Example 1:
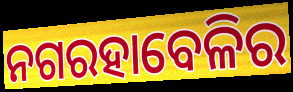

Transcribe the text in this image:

ନଗରହାବେଳିର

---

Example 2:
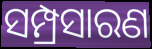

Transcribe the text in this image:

ସମ୍ପ୍ରସାରଣ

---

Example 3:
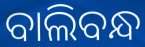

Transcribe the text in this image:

ବାଲିବନ୍ଧ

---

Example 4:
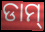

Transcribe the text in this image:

ଡାମ୍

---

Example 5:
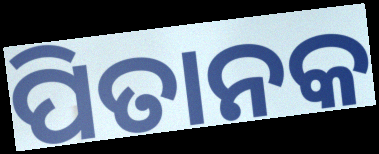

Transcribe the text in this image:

ପିତାନକ